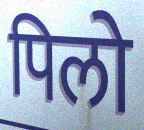
पिलो